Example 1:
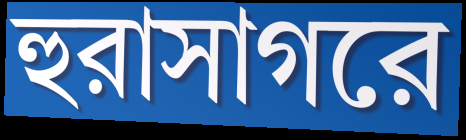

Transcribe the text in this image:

হুরাসাগরে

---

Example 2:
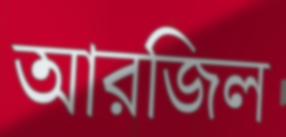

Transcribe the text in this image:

আরজিল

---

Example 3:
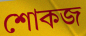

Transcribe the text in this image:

শোকজ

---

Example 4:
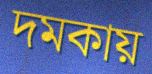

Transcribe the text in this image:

দমকায়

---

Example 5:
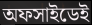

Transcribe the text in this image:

অফসাইডেই